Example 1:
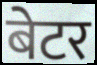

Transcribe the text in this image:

बेटर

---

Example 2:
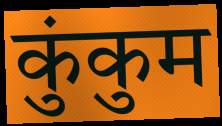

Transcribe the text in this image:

कुंकुम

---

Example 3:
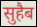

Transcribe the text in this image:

सुहैब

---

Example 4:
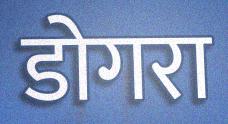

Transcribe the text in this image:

डोगरा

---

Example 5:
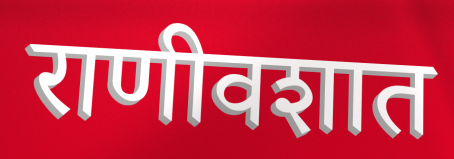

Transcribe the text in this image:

राणीवशात